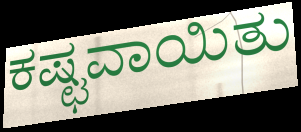
ಕಷ್ಟವಾಯಿತು